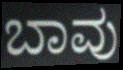
ಬಾವು